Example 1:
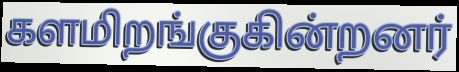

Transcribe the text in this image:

களமிறங்குகின்றனர்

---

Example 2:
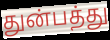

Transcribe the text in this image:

துன்பத்து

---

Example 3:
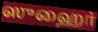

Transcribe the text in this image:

ஸுஹைர்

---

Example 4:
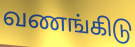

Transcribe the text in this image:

வணங்கிடு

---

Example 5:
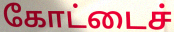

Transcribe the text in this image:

கோட்டைச்